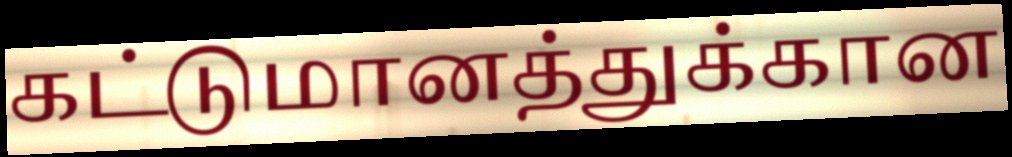
கட்டுமானத்துக்கான